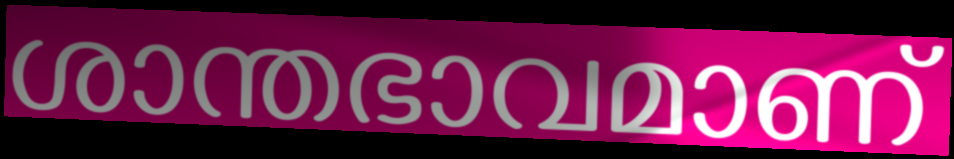
ശാന്തഭാവമാണ്